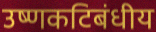
उष्णकटिबंधीय